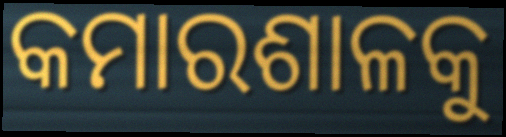
କମାରଶାଳକୁ